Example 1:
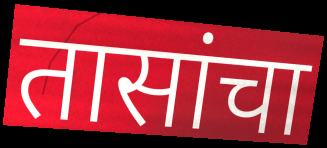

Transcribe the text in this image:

तासांचा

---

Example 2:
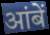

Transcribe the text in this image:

आंबें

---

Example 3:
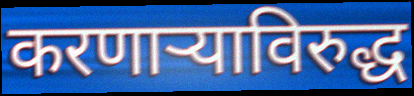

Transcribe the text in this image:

करणाऱ्याविरुद्ध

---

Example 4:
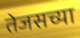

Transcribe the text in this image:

तेजसच्या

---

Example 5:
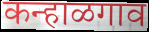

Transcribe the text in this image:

कन्हाळगाव